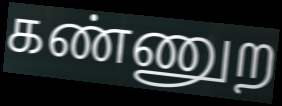
கண்ணுற